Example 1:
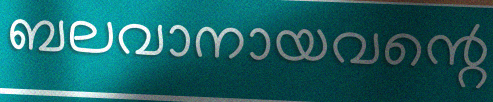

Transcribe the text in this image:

ബലവാനായവന്റെ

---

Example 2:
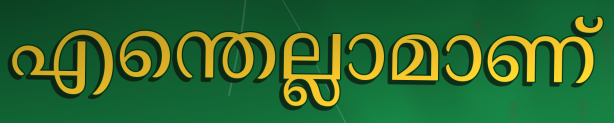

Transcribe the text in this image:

എന്തെല്ലാമാണ്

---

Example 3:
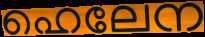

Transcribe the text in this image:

ഹെലേന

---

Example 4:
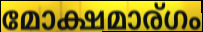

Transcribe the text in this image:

മോക്ഷമാര്ഗം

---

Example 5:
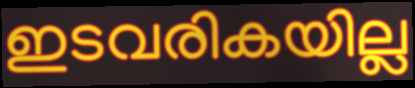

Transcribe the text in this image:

ഇടവരികയില്ല